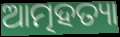
ଆତ୍ମହତ୍ୟା